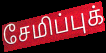
சேமிப்புக்